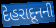
દેહરાદૂનની